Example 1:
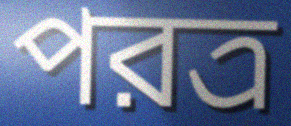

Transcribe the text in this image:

পরত্র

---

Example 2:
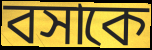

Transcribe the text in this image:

বসাকে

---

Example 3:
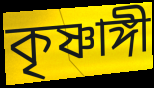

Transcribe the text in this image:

কৃষ্ণাঙ্গী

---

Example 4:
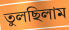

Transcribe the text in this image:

তুলছিলাম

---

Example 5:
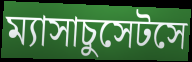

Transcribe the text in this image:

ম্যাসাচুসেটসে